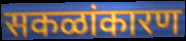
सकळांकारण